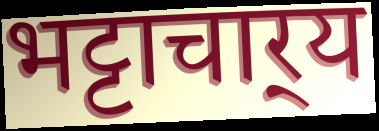
भट्टाचार्य